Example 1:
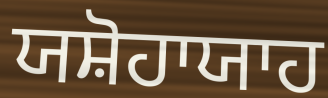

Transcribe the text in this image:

ਯਸ਼ੋਹਾਯਾਹ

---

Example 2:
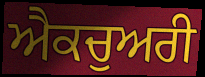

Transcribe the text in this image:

ਐਕਚੁਅਰੀ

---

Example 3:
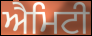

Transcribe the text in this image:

ਐਮਿਟੀ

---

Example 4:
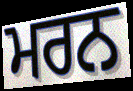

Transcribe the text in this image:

ਮਰਨ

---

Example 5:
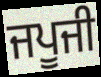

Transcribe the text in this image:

ਜਪੂਜੀ